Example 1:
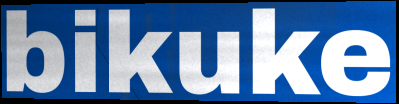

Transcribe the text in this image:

bikuke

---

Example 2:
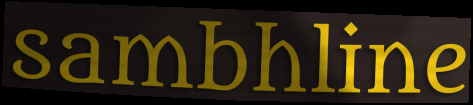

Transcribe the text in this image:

sambhline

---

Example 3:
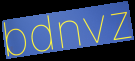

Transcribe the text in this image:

bdnvz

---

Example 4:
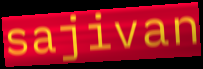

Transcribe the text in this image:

sajivan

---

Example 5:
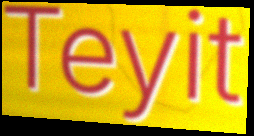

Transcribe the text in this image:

Teyit